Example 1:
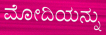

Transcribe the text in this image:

ಮೋದಿಯನ್ನು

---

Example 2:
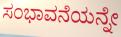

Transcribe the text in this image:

ಸಂಭಾವನೆಯನ್ನೇ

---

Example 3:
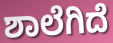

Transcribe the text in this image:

ಶಾಲೆಗಿದೆ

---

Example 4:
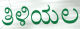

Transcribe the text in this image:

ತಿಳಿಯಲ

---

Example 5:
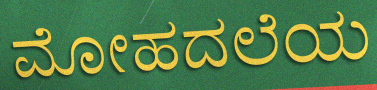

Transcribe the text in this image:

ಮೋಹದಲೆಯ